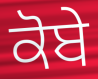
ਕੋਬੇ